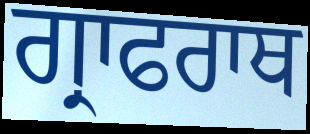
ਗ੍ਰਾਫਰਾਥ